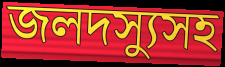
জলদস্যুসহ